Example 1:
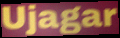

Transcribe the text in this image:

Ujagar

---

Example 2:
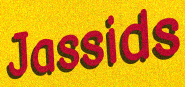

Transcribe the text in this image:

Jassids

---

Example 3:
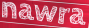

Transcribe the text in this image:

nawra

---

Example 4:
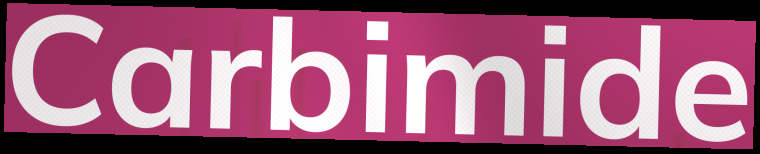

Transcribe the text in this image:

Carbimide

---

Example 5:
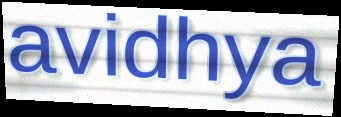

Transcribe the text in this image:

avidhya